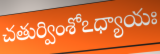
చతుర్వింశోఽధ్యాయః